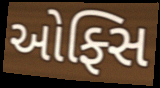
ઓફ્સિ